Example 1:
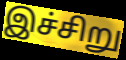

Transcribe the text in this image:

இச்சிறு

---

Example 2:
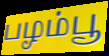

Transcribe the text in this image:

பழம்பூ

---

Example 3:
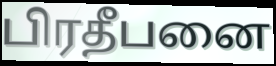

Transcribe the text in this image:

பிரதீபனை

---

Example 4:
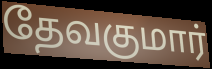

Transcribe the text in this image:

தேவகுமார்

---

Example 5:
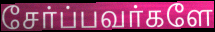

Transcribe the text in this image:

சேர்ப்பவர்களே